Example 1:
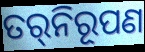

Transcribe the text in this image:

ତର୍‌ନିରୂପଣ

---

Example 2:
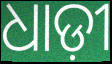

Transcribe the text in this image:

ଧାଡ଼ୀ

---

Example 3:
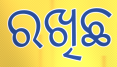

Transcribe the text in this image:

ରଖିଛ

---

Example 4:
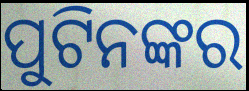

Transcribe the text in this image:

ପୁଟିନଙ୍କର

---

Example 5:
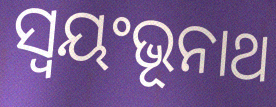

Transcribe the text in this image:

ସ୍ଵୟଂଭୂନାଥ